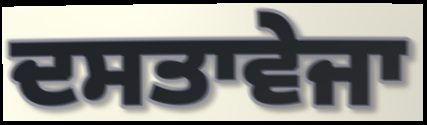
ਦਸਤਾਵੇਜਾ